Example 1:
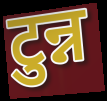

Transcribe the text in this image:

टुन्न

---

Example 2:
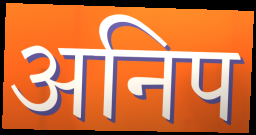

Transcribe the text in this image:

अनिप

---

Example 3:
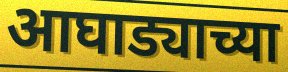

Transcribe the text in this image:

आघाड्याच्या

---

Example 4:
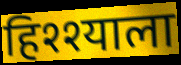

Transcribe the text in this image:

हिश्श्याला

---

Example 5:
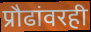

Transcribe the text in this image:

प्रौढांवरही